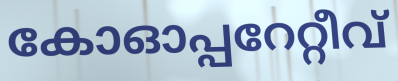
കോഓപ്പറേറ്റീവ്